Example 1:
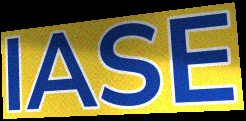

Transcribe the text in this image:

IASE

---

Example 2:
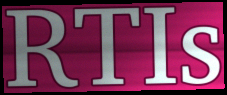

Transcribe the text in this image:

RTIs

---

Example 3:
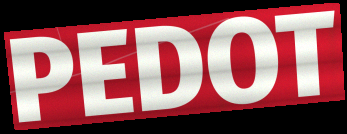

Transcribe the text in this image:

PEDOT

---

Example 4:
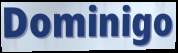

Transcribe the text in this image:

Dominigo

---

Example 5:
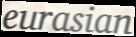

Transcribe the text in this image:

eurasian